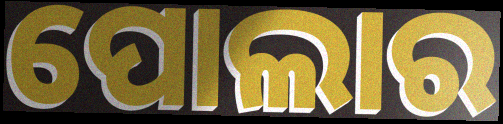
ପୋଲାର